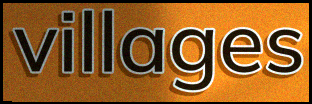
villages